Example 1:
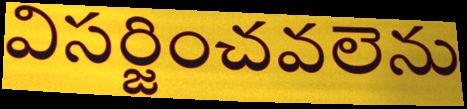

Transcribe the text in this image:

విసర్జించవలెను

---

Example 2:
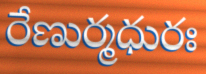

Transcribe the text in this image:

రేణుర్మధురః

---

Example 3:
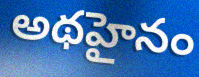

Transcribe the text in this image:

అథహైనం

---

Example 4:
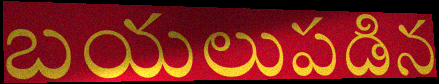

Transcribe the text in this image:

బయలుపడిన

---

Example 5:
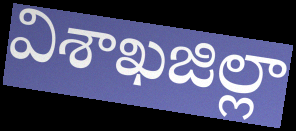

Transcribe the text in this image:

విశాఖజిల్లా